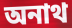
অনাথ